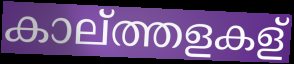
കാല്ത്തളകള്